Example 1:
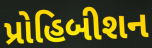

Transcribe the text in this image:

પ્રોહિબીશન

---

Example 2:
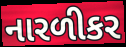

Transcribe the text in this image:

નારળીકર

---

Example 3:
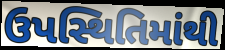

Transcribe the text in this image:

ઉપસ્થિતિમાંથી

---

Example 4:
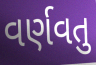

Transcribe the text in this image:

વર્ણવતુ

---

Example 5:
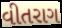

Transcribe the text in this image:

વીતરાગ